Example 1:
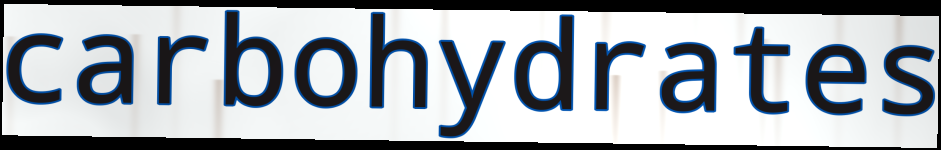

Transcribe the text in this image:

carbohydrates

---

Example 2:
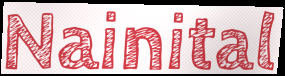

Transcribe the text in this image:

Nainital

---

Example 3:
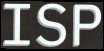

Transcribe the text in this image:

ISP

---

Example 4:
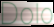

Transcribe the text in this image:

Dolo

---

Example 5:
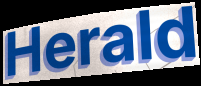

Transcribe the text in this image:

Herald